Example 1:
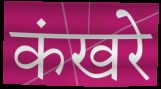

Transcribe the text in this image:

कंखरे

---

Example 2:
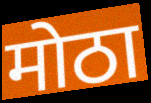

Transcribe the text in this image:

मोठा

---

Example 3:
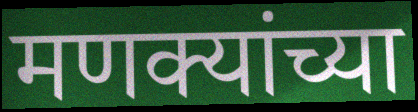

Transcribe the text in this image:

मणक्यांच्या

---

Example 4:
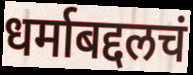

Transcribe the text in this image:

धर्माबद्दलचं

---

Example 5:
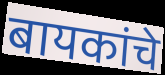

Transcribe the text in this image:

बायकांचे